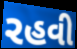
રહવી